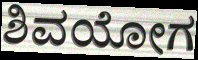
ಶಿವಯೋಗ